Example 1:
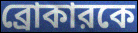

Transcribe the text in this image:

ব্রোকারকে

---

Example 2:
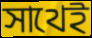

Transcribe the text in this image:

সাথেই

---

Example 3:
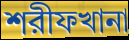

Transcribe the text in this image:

শরীফখানা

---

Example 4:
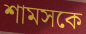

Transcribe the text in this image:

শামসকে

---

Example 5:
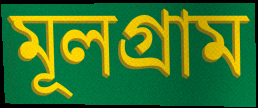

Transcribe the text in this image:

মূলগ্রাম